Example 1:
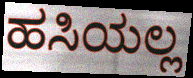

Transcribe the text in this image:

ಹಸಿಯಲ್ಲ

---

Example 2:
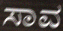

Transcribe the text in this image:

ಸಾವ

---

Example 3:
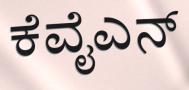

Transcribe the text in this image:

ಕೆವೈಎನ್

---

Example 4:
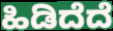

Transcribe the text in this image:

ಹಿಡಿದೆದೆ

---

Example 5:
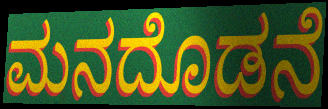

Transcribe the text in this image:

ಮನದೊಡನೆ